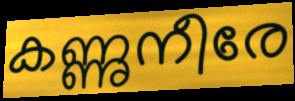
കണ്ണുനീരേ